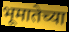
भूमातेच्या